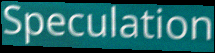
Speculation